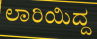
ಲಾರಿಯಿದ್ದ